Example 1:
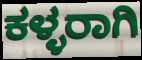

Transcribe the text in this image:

ಕಳ್ಳರಾಗಿ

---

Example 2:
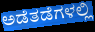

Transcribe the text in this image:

ಅಡೆತಡೆಗಳಲ್ಲಿ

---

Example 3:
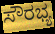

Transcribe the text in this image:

ಸೌರಭ್ಯ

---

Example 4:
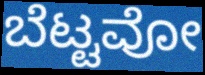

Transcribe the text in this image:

ಬೆಟ್ಟವೋ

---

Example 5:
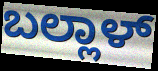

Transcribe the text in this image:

ಬಲ್ಲಾಳ್